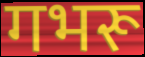
गभरू